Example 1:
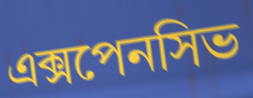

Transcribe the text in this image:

এক্সপেনসিভ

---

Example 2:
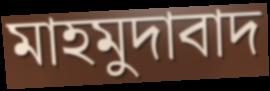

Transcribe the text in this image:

মাহমুদাবাদ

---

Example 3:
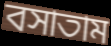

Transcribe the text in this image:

বসাতাম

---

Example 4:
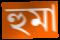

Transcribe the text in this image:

হুমা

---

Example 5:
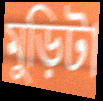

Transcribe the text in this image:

মুড়িটা